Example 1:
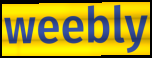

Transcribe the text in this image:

weebly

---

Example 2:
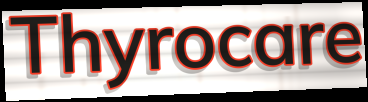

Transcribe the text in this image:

Thyrocare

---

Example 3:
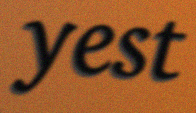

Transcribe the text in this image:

yest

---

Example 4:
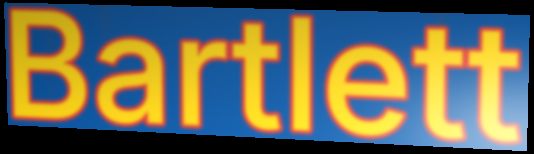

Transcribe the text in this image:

Bartlett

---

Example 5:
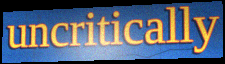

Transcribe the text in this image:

uncritically